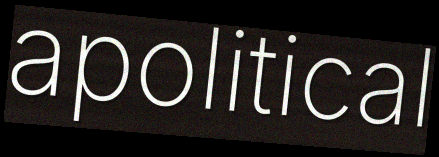
apolitical